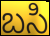
బసి